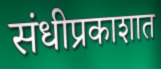
संधीप्रकाशात